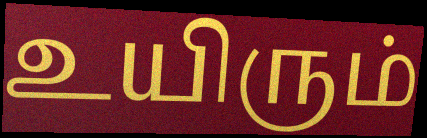
உயிரும்